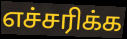
எச்சரிக்க